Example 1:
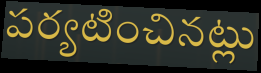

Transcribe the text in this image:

పర్యటించినట్లు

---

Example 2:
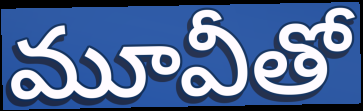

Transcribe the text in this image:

మూవీతో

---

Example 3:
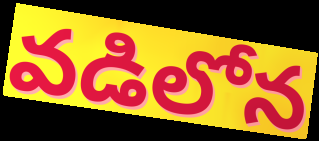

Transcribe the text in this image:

వడిలోన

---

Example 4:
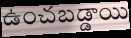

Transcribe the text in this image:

ఉంచబడ్డాయి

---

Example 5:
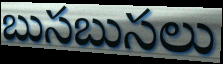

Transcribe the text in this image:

బుసబుసలు